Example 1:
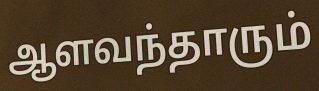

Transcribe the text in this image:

ஆளவந்தாரும்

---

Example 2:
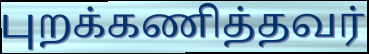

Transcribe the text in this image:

புறக்கணித்தவர்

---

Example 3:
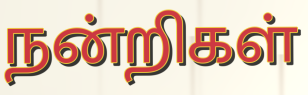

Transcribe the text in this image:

நன்றிகள்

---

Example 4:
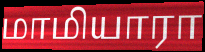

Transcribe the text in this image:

மாமியாரா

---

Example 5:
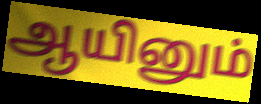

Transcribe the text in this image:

ஆயினும்